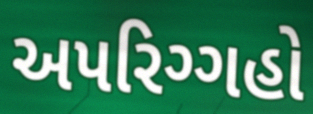
અપરિગ્ગહો